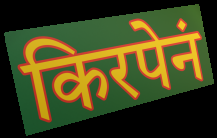
किरपेनं